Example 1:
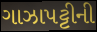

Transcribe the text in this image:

ગાઝાપટ્ટીની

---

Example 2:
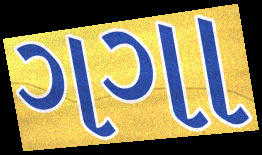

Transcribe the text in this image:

ગગા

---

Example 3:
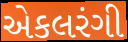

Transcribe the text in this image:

એકલરંગી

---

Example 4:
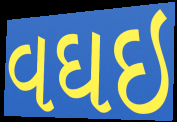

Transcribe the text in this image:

વઘઇ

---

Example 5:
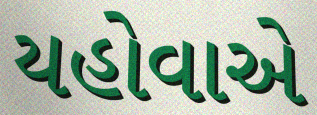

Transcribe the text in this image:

યહોવાએ